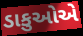
ડાકુઓએ